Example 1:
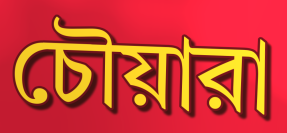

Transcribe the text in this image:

চৌয়ারা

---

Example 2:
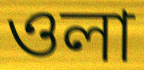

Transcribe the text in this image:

ওলা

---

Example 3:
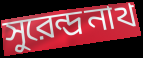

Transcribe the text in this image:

সুরেন্দ্রনাথ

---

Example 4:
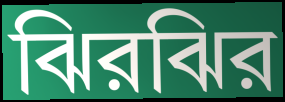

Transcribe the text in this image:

ঝিরঝির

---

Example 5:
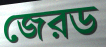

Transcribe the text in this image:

জেরড